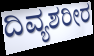
ದಿವ್ಯಶರೀರ